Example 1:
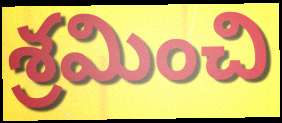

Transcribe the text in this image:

శ్రమించి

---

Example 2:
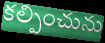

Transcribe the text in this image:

కల్పించును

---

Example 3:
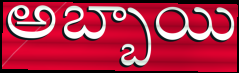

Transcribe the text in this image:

అబ్బాయి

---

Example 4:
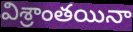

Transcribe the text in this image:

విశ్రాంతయినా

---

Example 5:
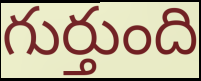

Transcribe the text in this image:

గుర్తుంది